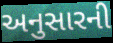
અનુસારની